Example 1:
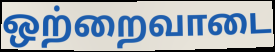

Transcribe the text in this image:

ஒற்றைவாடை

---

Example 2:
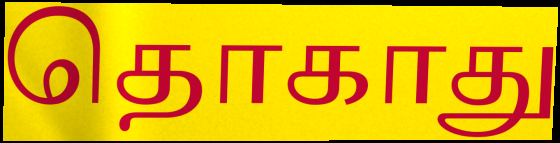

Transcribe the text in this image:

தொகாது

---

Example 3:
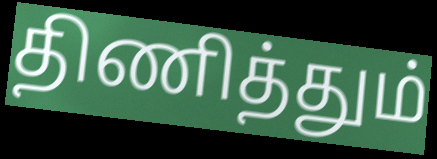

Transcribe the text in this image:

திணித்தும்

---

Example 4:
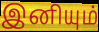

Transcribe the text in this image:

இனியும்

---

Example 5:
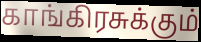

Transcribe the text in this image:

காங்கிரசுக்கும்